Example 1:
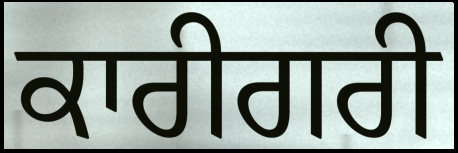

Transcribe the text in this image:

ਕਾਰੀਗਰੀ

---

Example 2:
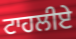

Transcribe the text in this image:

ਟਾਹਲੀਏ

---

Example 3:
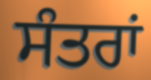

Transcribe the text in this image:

ਸੰਤਰਾਂ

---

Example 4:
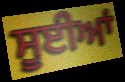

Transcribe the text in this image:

ਸੂਈਆਂ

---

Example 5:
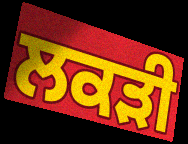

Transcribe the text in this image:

ਲਕੜੀ